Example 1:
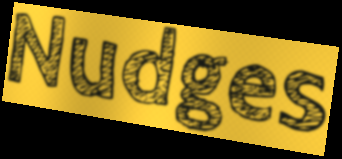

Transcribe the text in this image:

Nudges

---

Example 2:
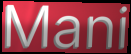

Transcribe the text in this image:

Mani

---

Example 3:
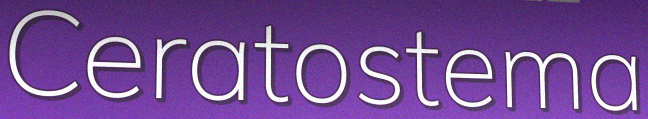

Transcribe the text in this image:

Ceratostema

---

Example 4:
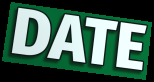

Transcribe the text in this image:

DATE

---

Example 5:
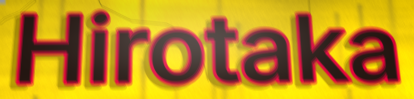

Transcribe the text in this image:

Hirotaka